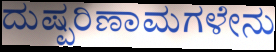
ದುಷ್ಪರಿಣಾಮಗಳೇನು